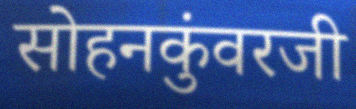
सोहनकुंवरजी